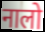
नालो